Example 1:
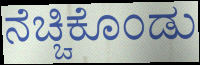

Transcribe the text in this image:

ನೆಚ್ಚಿಕೊಂಡು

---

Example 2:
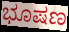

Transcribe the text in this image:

ಭೂಷಣ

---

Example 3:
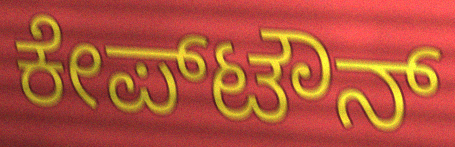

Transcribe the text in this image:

ಕೇಪ್‌ಟೌನ್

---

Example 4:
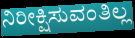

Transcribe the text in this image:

ನಿರೀಕ್ಷಿಸುವಂತಿಲ್ಲ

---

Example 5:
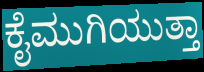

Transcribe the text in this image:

ಕೈಮುಗಿಯುತ್ತಾ